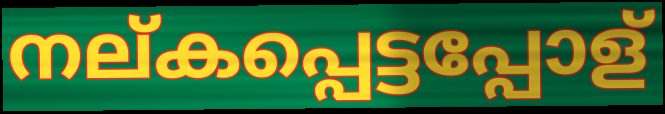
നല്കപ്പെട്ടപ്പോള്